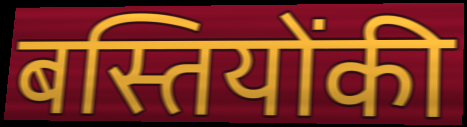
बस्तियोंकी